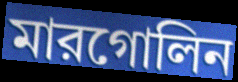
মারগোলিন